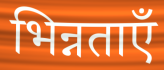
भिन्नताएँ